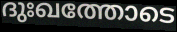
ദുഃഖത്തോടെ